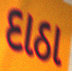
દાઠા